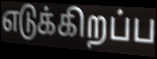
எடுக்கிறப்ப